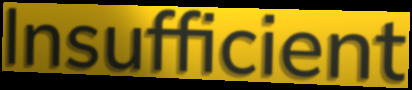
Insufficient